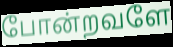
போன்றவளே